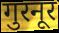
गुरनूर